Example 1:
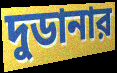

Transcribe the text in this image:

দুডানার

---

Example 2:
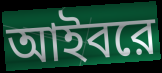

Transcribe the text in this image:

আইবরে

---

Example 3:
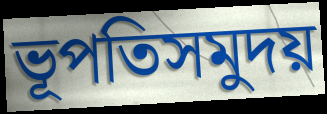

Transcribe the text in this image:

ভূপতিসমুদয়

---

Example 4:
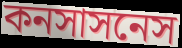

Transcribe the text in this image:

কনসাসনেস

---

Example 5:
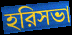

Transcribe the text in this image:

হরিসভা